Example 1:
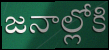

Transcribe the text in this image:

జనాల్లోకి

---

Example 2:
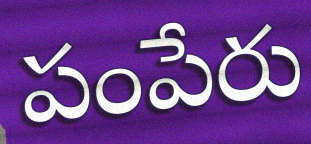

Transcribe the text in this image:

పంపేరు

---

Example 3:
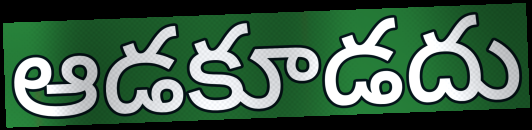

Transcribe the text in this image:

ఆడకూడదు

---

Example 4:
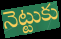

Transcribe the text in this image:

నెట్టుకు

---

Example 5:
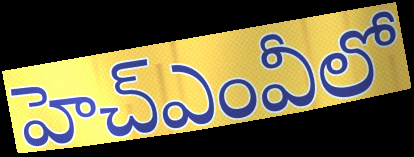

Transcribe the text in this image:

హెచ్ఎంవీలో